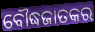
ବୌଦ୍ଧଜାତକର